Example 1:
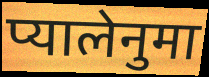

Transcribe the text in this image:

प्यालेनुमा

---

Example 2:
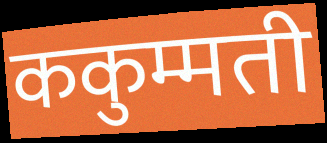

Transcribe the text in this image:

ककुम्मती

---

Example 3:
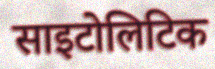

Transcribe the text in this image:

साइटोलिटिक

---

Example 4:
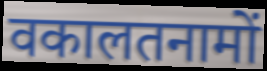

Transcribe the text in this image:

वकालतनामों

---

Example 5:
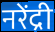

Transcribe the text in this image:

नरेंद्री